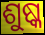
ଶୁଷ୍କ